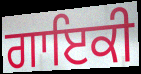
ਗਾਇਕੀ